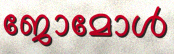
ജോമോൾ